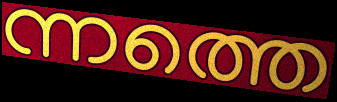
ന്നത്തെ